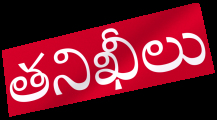
తనిఖీలు